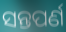
ସନ୍ତପର୍ଣ